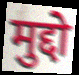
मुद्दो